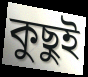
কুছুই